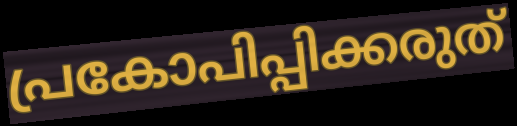
പ്രകോപിപ്പിക്കരുത്